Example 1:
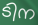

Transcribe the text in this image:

ടിന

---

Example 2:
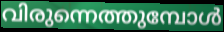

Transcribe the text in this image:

വിരുന്നെത്തുമ്പോൾ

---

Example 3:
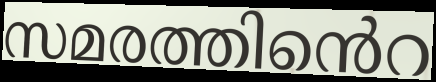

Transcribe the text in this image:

സമരത്തിൻെറ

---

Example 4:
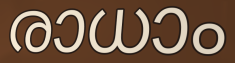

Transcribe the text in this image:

രാധാം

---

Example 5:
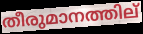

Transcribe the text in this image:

തീരുമാനത്തില്